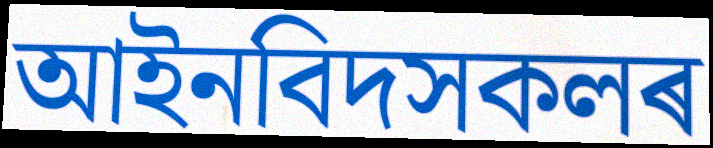
আইনবিদসকলৰ